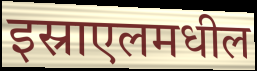
इस्राएलमधील